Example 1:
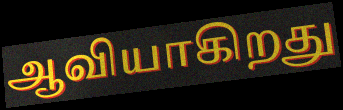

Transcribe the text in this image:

ஆவியாகிறது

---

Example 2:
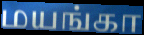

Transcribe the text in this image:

மயங்கா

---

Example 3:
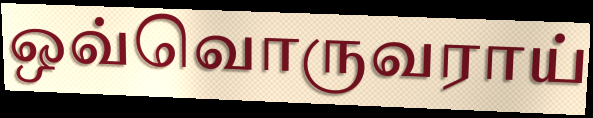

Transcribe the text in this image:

ஒவ்வொருவராய்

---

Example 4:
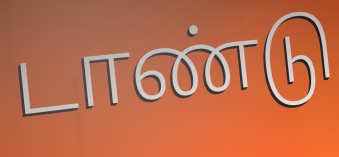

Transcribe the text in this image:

டாண்டு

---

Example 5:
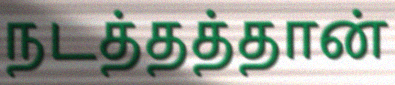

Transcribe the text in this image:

நடத்தத்தான்